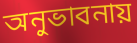
অনুভাবনায়